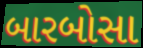
બારબોસા